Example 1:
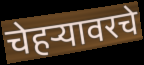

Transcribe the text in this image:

चेहऱ्यावरचे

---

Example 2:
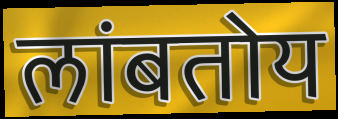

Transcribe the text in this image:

लांबतोय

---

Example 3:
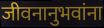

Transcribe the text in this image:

जीवनानुभवांना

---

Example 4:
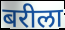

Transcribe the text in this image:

बरीला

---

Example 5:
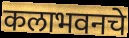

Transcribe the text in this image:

कलाभवनचे